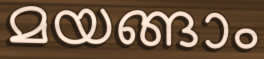
മയങ്ങാം